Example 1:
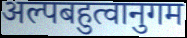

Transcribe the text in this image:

अल्पबहुत्वानुगम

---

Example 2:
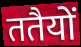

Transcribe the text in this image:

ततैयों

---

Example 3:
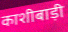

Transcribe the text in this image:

काशीबाड़ी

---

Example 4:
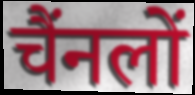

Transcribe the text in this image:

चैंनलों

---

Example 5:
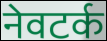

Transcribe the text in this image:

नेवटर्क